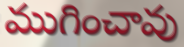
ముగించావు